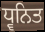
ਧ੍ਵਨਿਤ